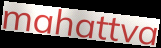
mahattva